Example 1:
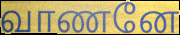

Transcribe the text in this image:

வாணனே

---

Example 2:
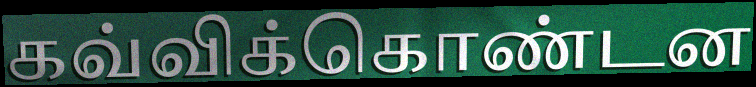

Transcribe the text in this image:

கவ்விக்கொண்டன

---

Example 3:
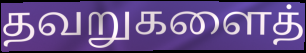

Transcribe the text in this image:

தவறுகளைத்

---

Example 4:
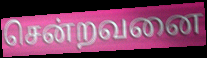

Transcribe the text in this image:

சென்றவனை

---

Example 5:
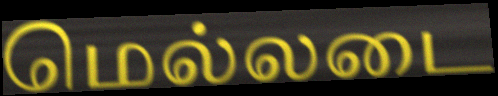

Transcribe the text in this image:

மெல்லடை